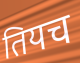
तियच